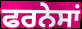
ਫਰਨੇਸਾਂ